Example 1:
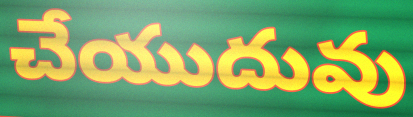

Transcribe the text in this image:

చేయుదువు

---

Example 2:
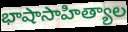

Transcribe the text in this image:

భాషాసాహిత్యాల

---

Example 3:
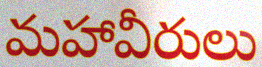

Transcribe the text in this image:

మహావీరులు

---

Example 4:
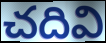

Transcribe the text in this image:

చదివి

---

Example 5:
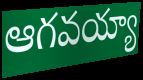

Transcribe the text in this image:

ఆగవయ్యా